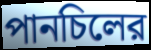
পানচিলের